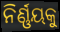
ନିର୍ଣ୍ଣୟକୁ